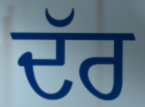
ਦੱਰ